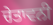
ਚੇਤਾਵਨੀ